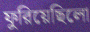
ফুরিয়েছিলো